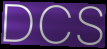
DCS